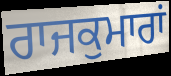
ਰਾਜਕੁਮਾਰਾਂ